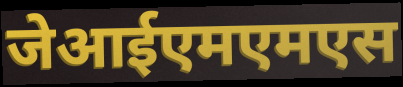
जेआईएमएमएस